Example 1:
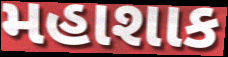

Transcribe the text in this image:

મહાશાક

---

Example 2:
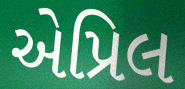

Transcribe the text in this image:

એપ્રિલ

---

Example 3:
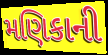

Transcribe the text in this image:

મણિકાની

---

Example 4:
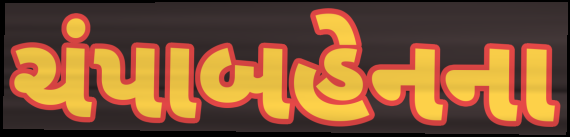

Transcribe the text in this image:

ચંપાબહેનના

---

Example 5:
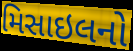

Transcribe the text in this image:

મિસાઇલનો